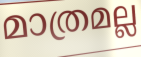
മാത്രമല്ല